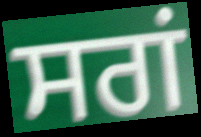
ਸਗਂ